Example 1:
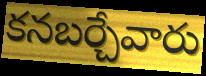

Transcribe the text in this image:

కనబర్చేవారు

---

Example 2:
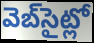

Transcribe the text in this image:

వెబ్‌సైట్లో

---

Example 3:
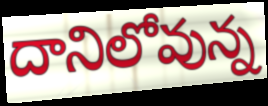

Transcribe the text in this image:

దానిలోవున్న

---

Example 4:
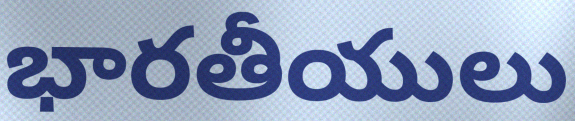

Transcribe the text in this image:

భారతీయులు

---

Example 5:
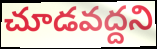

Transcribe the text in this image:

చూడవద్దని